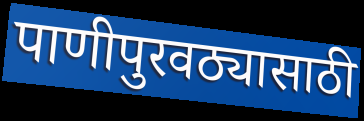
पाणीपुरवठ्यासाठी